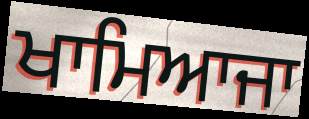
ਖਾਮਿਆਜਾ